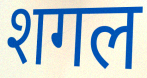
शगल